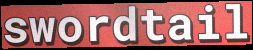
swordtail